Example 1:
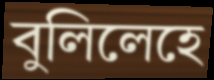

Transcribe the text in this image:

বুলিলেহে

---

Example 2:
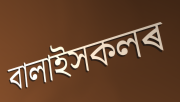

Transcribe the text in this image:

বালাইসকলৰ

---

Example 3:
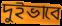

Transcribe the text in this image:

দুইভাবে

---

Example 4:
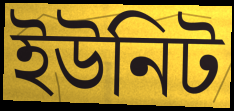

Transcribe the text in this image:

ইউনিট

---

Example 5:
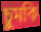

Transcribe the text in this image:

চুমকি